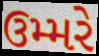
ઉમ્મરે